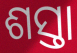
ଶସ୍ତା